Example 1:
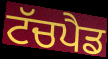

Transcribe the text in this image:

ਟੱਚਪੈਡ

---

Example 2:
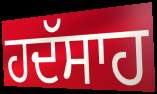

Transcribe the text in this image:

ਹਦੱਸਾਹ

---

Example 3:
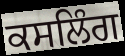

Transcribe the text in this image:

ਕਸਲਿੰਗ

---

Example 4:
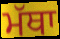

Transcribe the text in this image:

ਮੱਥਾ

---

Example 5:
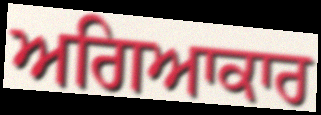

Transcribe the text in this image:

ਅਗਿਆਕਾਰ